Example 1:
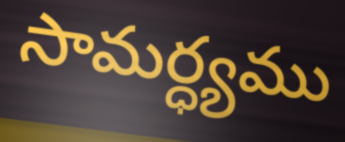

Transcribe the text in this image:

సామర్ధ్యము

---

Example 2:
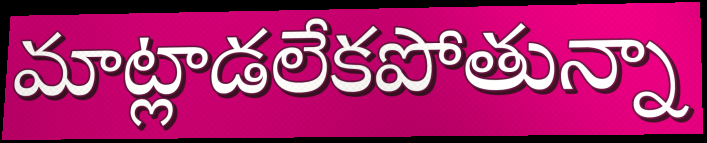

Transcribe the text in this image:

మాట్లాడలేకపోతున్నా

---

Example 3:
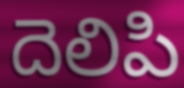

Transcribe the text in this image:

దెలిపి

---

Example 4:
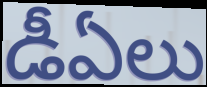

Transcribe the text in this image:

డీఏలు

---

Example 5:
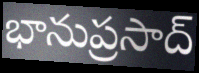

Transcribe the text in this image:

భానుప్రసాద్